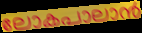
ലോകപാലാൻ